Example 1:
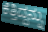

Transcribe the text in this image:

ಕೆತ್ತಿದ್ದನ್ನು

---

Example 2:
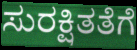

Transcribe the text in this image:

ಸುರಕ್ಷಿತತೆಗೆ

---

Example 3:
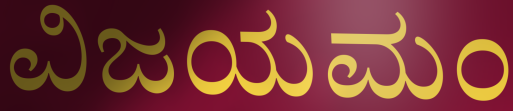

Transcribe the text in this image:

ವಿಜಯಮಂ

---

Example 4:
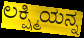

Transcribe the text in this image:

ಲಕ್ಷ್ಮಿಯನ್ನ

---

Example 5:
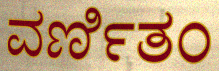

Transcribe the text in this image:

ವರ್ಣಿತಂ